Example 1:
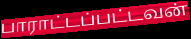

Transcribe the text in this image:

பாராட்டப்பட்டவன்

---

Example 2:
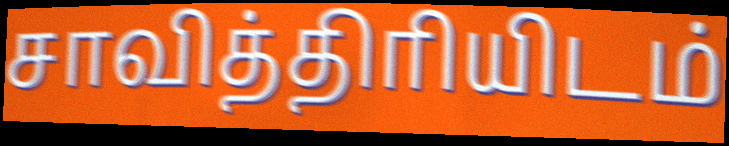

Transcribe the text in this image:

சாவித்திரியிடம்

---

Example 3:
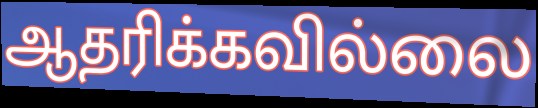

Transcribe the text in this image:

ஆதரிக்கவில்லை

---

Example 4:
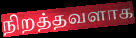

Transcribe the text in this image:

நிறத்தவளாக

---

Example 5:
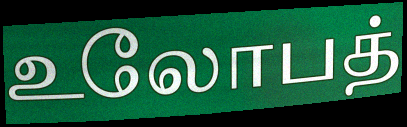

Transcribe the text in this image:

உலோபத்